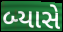
બ્યાસે